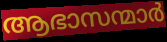
ആഭാസന്മാർ